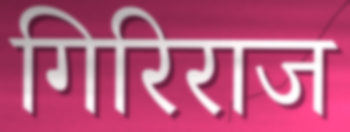
गिरिराज